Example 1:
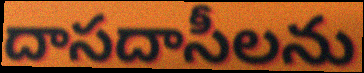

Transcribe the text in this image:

దాసదాసీలను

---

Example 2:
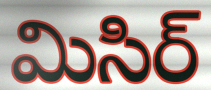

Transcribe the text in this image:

మిసిర్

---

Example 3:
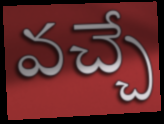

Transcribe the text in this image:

వచ్చే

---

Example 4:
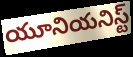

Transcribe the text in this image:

యూనియనిస్ట్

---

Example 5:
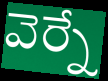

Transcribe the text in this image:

వెర్నే